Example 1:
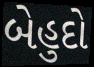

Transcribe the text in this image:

બેહુદો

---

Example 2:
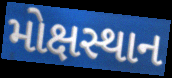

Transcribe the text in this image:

મોક્ષસ્થાન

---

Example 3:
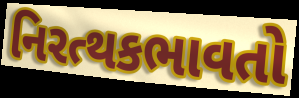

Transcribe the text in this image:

નિરત્થકભાવતો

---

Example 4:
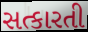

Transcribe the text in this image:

સત્કારતી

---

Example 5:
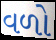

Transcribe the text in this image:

વળો